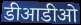
डीआडीओ